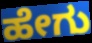
ಹೇಗು